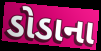
ડોડાના